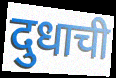
दुधाची